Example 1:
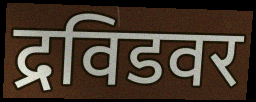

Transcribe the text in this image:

द्रविडवर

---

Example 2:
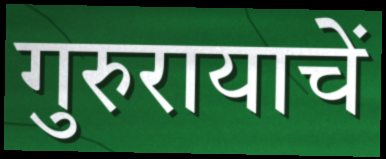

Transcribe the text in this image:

गुरुरायाचें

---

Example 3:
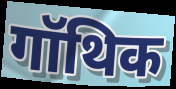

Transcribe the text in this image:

गॉथिक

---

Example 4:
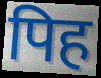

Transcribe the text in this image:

पिह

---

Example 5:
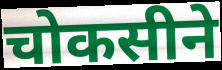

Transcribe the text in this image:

चोकसीने